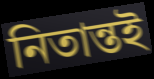
নিতান্তই